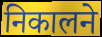
निकालने